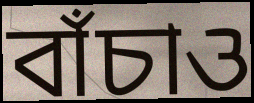
বাঁচাও